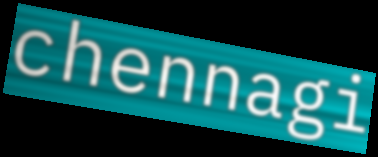
chennagi